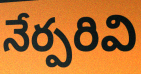
నేర్పరివి